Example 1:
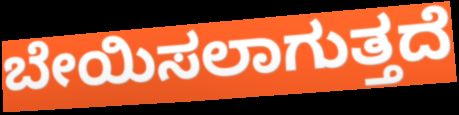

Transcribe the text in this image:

ಬೇಯಿಸಲಾಗುತ್ತದೆ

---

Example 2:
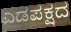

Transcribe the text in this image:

ಎಡಪಕ್ಷದ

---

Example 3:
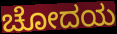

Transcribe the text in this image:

ಚೋದಯ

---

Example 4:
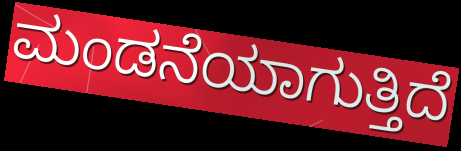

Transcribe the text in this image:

ಮಂಡನೆಯಾಗುತ್ತಿದೆ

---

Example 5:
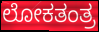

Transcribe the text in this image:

ಲೋಕತಂತ್ರ